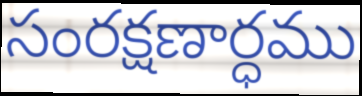
సంరక్షణార్ధము